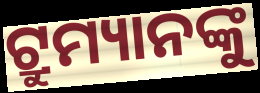
ଟ୍ରୁମ୍ୟାନଙ୍କୁ